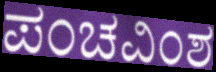
ಪಂಚವಿಂಶ